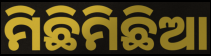
ମିଛିମିଛିଆ